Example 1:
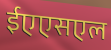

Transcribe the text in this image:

ईएएसएल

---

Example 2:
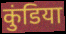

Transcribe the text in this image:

कुंडिया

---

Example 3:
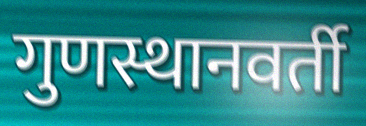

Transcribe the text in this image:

गुणस्थानवर्ती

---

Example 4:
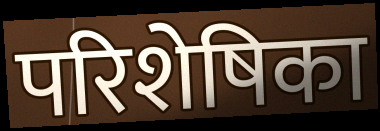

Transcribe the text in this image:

परिशेषिका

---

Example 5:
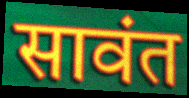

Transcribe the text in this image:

सावंत